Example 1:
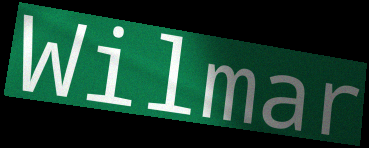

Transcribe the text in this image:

Wilmar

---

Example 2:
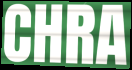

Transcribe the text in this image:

CHRA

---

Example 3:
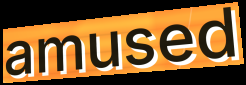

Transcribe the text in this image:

amused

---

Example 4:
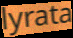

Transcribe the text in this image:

lyrata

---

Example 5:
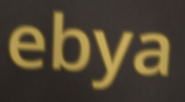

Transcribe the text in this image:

ebya